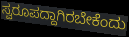
ಸ್ವರೂಪದ್ದಾಗಿರಬೇಕೆಂದು